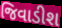
જિવાડીશ